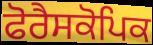
ਫੋਰੈਸਕੋਪਿਕ